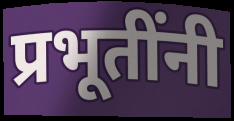
प्रभूतींनी